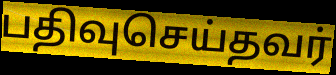
பதிவுசெய்தவர்